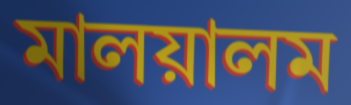
মালয়ালম